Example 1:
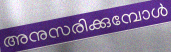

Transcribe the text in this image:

അനുസരിക്കുമ്പോൾ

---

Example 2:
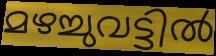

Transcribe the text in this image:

മഴച്ചുവട്ടിൽ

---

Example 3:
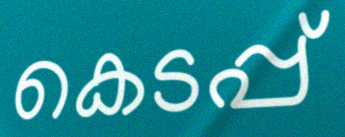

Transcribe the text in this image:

കെടപ്പ്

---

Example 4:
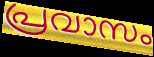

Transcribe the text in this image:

പ്രവാസം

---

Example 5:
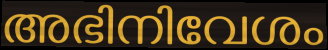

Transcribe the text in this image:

അഭിനിവേശം